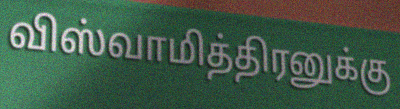
விஸ்வாமித்திரனுக்கு